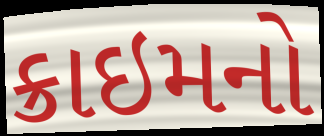
ક્રાઇમનો